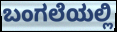
ಬಂಗಲೆಯಲ್ಲಿ